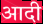
आदी